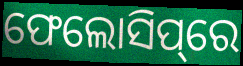
ଫେଲୋସିପ୍‌ରେ